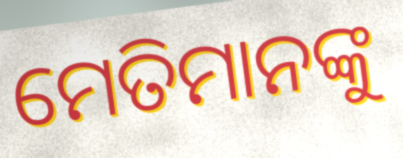
ମେତିମାନଙ୍କୁ